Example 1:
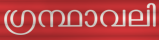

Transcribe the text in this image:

ഗ്രന്ഥാവലി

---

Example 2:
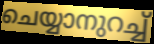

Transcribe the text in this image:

ചെയ്യാനുറച്ച്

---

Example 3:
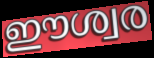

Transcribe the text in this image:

ഈശ്വര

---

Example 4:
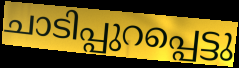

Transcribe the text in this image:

ചാടിപ്പുറപ്പെട്ടു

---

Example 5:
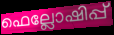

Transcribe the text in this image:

ഫെല്ലോഷിപ്പ്